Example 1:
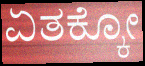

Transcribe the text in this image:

ಏತಕ್ಕೋ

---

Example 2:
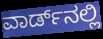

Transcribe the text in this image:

ವಾರ್ಡ್‌ನಲ್ಲಿ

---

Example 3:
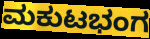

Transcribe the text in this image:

ಮಕುಟಭಂಗ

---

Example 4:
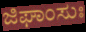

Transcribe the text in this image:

ಜಿಘಾಂಸುಃ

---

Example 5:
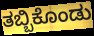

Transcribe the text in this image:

ತಬ್ಬಿಕೊಂಡು